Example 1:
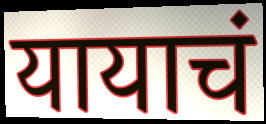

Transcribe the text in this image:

यायाचं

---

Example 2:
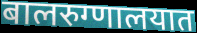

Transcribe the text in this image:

बालरुग्णालयात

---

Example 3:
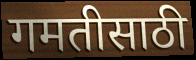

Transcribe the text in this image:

गमतीसाठी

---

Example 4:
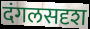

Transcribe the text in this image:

दंगलसदृश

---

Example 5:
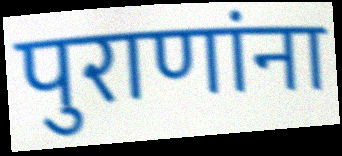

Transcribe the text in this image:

पुराणांना